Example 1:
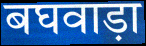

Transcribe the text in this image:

बघवाड़ा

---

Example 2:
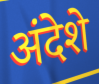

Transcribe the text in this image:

अंदेशे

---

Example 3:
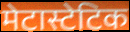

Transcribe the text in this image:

मेटास्टेटिक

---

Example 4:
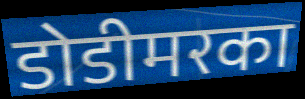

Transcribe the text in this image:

डोडीमरका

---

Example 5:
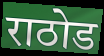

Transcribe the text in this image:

राठोड